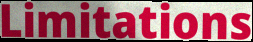
Limitations